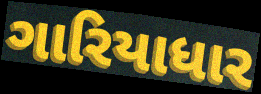
ગારિયાધાર